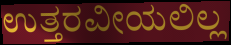
ಉತ್ತರವೀಯಲಿಲ್ಲ